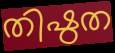
തിഷ്ഠത